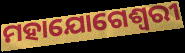
ମହାଯୋଗେଶ୍ୱରୀ